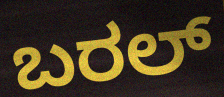
ಬರಲ್